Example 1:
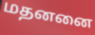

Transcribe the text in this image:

மதனனை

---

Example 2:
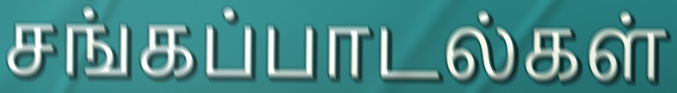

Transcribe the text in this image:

சங்கப்பாடல்கள்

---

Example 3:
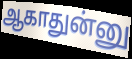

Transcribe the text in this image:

ஆகாதுன்னு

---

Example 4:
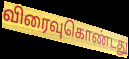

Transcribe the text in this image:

விரைவுகொண்டது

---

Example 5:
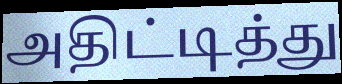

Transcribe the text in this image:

அதிட்டித்து